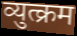
व्युत्क्रम